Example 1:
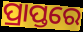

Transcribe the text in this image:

ପ୍ରାପ୍ତରେ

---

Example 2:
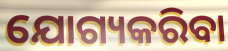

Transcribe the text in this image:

ଯୋଗ୍ୟକରିବା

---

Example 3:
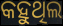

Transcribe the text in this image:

କହୁଥିଲ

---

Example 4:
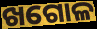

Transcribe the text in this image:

ଖଗୋଳ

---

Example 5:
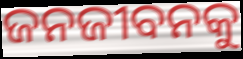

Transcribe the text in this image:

ଜନଜୀବନକୁ